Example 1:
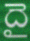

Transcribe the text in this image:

దై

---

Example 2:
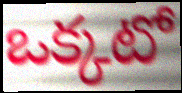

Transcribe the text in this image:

ఒక్కటో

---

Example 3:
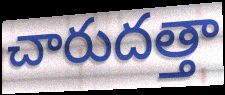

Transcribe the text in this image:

చారుదత్తా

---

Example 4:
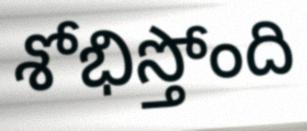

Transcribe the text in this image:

శోభిస్తోంది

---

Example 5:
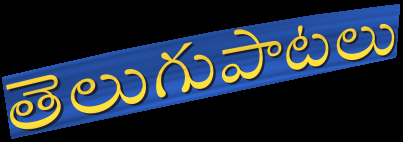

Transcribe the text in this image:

తెలుగుపాటలు